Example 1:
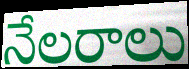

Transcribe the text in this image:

నేలరాలు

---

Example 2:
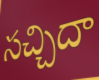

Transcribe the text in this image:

సచ్చిదా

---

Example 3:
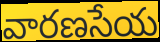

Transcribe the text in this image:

వారణసేయ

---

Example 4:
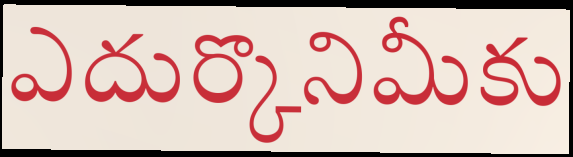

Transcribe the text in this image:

ఎదుర్కొనిమీకు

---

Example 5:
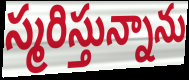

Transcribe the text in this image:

స్మరిస్తున్నాను